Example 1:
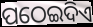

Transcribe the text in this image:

ପଠେଇଦିଏ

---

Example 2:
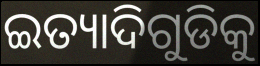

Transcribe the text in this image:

ଇତ୍ୟାଦିଗୁଡିକୁ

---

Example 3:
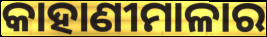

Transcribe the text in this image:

କାହାଣୀମାଳାର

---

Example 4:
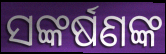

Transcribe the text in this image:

ସଙ୍କର୍ଷଣଙ୍କ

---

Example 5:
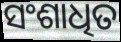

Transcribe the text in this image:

ସଂଶାଧିତ